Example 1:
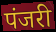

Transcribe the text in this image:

पंजरी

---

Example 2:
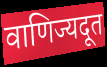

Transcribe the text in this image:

वाणिज्यदूत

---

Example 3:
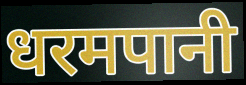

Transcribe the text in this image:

धरमपानी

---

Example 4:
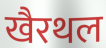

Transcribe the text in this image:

खैरथल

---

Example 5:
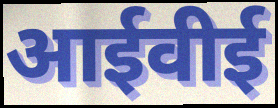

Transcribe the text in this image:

आईवीई